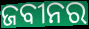
ଜବୀନର